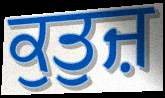
ਕੁਤੁਜ਼